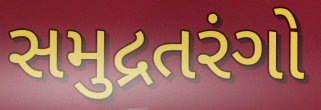
સમુદ્રતરંગો